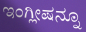
ಇಂಗ್ಲೀಷನ್ನೂ